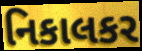
નિકાલકર